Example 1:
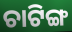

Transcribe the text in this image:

ଚାଟିଙ୍ଗ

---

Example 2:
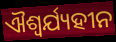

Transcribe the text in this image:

ଐଶ୍ୱର୍ଯ୍ୟହୀନ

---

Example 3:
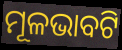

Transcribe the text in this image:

ମୂଳଭାବଟି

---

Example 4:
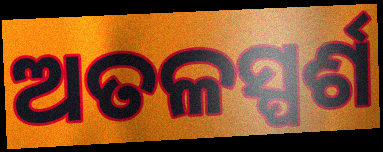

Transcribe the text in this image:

ଅତଳସ୍ପର୍ଶ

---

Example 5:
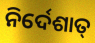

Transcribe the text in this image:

ନିର୍ଦେଶାତ୍